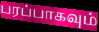
பரப்பாகவும்